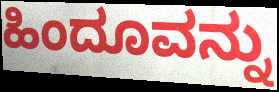
ಹಿಂದೂವನ್ನು